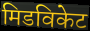
मिडविकेट